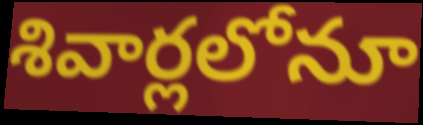
శివార్లలోనూ